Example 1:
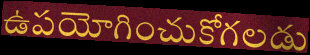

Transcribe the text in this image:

ఉపయోగించుకోగలడు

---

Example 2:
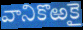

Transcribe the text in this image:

వానికొఱకై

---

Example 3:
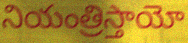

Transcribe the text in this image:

నియంత్రిస్తాయో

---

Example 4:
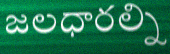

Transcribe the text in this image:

జలధారల్ని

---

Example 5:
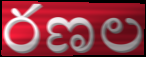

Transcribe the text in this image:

రణల